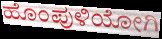
ಹೊಂಪುಳಿಯೋಗಿ